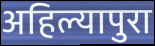
अहिल्यापुरा